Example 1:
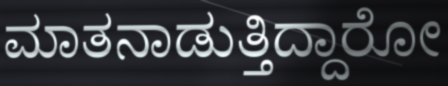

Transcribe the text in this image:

ಮಾತನಾಡುತ್ತಿದ್ದಾರೋ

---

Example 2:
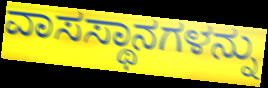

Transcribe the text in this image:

ವಾಸಸ್ಥಾನಗಳನ್ನು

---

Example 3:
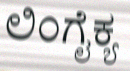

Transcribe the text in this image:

ಲಿಂಗೈಕ್ಯ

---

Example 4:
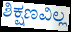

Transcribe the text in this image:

ಶಿಕ್ಷಣವಿಲ್ಲ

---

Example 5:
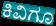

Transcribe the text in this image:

ಕಿವಿಗೂ